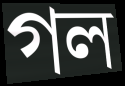
গল